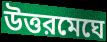
উত্তরমেঘে